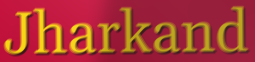
Jharkand